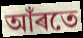
আঁৰতে